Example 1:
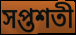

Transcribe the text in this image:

সপ্তশতী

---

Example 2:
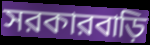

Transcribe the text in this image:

সরকারবাড়ি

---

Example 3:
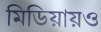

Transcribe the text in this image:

মিডিয়ায়ও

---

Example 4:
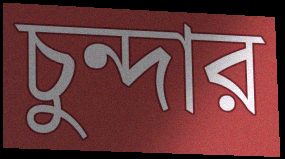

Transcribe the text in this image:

চুন্দার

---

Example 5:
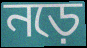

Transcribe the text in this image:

নড়ে